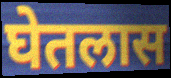
घेतलास